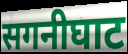
सगनीघाट